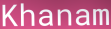
Khanam